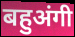
बहुअंगी